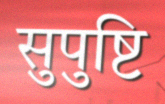
सुपुष्टि